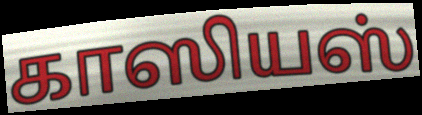
காஸியஸ்